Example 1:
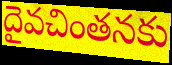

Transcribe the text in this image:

దైవచింతనకు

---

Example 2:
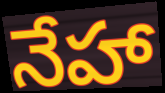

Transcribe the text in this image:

నేహా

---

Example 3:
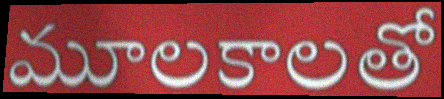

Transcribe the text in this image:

మూలకాలతో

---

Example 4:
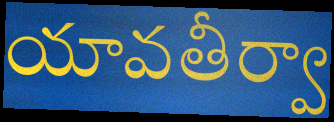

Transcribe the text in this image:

యావతీర్వా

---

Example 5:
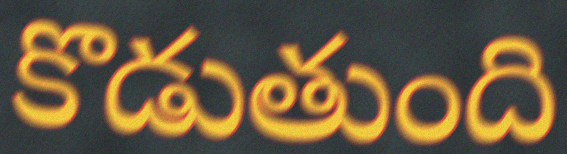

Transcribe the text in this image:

కొడుతుంది